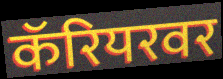
कॅरियरवर